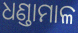
ଧଣ୍ଡାମାଳ